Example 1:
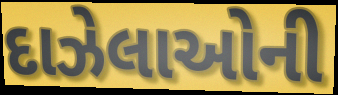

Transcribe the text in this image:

દાઝેલાઓની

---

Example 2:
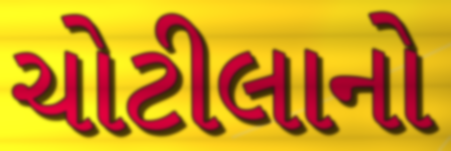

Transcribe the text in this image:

ચોટીલાનો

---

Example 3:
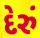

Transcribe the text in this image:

દેરું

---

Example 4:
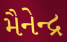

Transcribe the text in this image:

મૈનેન્દ્ર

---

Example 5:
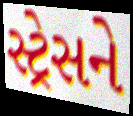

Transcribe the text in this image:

સ્ટ્રેસને